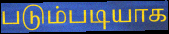
படும்படியாக